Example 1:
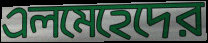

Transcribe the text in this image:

এলমেহেদের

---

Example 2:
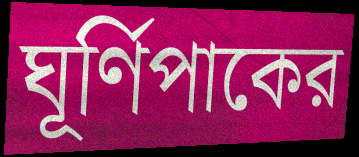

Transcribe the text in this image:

ঘূর্ণিপাকের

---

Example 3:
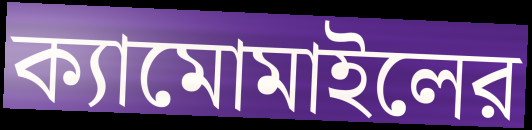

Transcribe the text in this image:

ক্যামোমাইলের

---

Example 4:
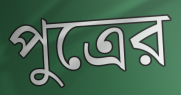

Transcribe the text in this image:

পুত্রের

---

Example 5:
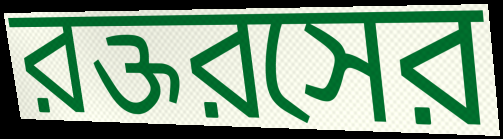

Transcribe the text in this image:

রক্তরসের